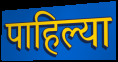
पाहिल्या